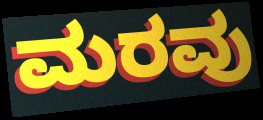
ಮರವು